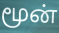
மூன்